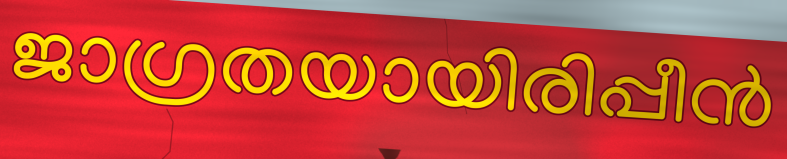
ജാഗ്രതയായിരിപ്പീൻ